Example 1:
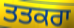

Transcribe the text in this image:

ਤਤਕਰਾ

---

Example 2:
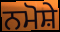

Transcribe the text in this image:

ਨਮੋਸ਼ੇ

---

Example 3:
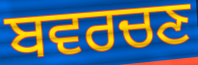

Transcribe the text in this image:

ਬਵਰਚਣ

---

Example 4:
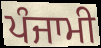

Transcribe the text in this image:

ਪੰਜਾਮੀ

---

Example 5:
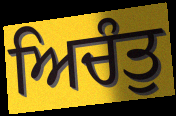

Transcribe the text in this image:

ਅਿਚੰਤੁ